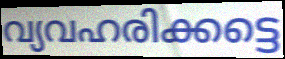
വ്യവഹരിക്കട്ടെ